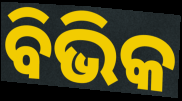
ବିଭିକ